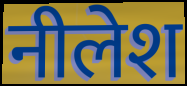
नीलेश